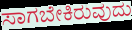
ಸಾಗಬೇಕಿರುವುದು